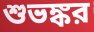
শুভঙ্কর